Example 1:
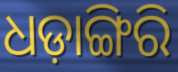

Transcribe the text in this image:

ଧଡ଼ାଙ୍ଗିରି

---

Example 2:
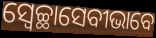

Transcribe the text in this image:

ସ୍ୱେଚ୍ଛାସେବୀଭାବେ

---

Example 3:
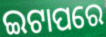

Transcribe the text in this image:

ଇଟାପରେ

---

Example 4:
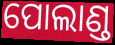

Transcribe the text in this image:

ପୋଲାଣ୍ଡ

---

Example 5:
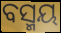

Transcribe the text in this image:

ବସ୍ମୟ